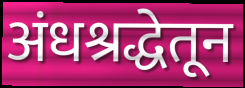
अंधश्रद्धेतून